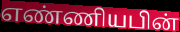
எண்ணியபின்